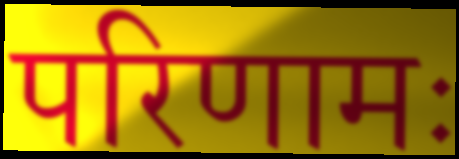
परिणामः